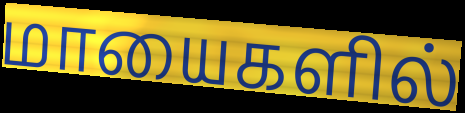
மாயைகளில்